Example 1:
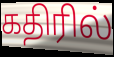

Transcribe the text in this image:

கதிரில்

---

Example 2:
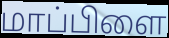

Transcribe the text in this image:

மாப்பிளை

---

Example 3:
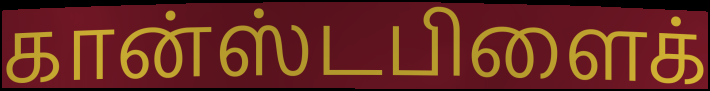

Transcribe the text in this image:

கான்ஸ்டபிளைக்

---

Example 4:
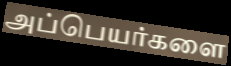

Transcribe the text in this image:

அப்பெயர்களை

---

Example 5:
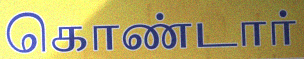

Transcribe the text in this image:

கொண்டார்